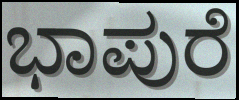
ಭಾಪುರೆ